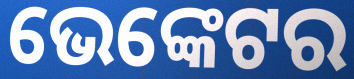
ଭେଙ୍କେଟର